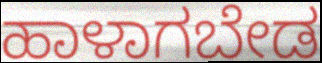
ಹಾಳಾಗಬೇಡ